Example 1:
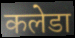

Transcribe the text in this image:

कलेडा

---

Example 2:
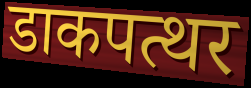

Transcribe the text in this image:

डाकपत्थर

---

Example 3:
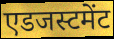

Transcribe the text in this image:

एडजस्टमेंट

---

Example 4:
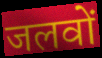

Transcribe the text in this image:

जलवों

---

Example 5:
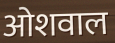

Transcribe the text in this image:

ओशवाल